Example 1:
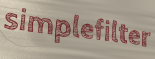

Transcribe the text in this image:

simplefilter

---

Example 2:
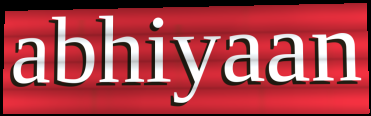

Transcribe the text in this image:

abhiyaan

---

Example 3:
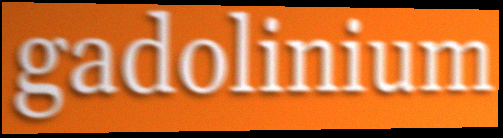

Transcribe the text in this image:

gadolinium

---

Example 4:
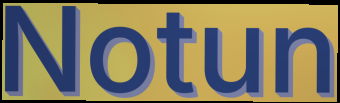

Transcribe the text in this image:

Notun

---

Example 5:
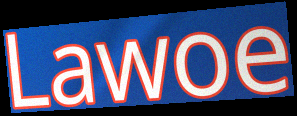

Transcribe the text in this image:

Lawoe